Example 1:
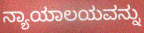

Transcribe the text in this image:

ನ್ಯಾಯಾಲಯವನ್ನು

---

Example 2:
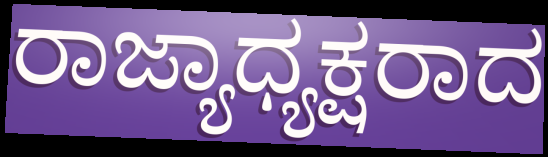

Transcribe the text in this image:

ರಾಜ್ಯಾಧ್ಯಕ್ಷರಾದ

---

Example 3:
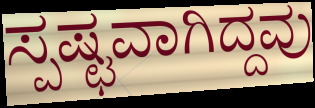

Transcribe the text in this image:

ಸ್ಪಷ್ಟವಾಗಿದ್ದವು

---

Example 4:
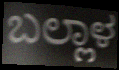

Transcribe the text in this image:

ಬಲ್ಲಾಳ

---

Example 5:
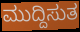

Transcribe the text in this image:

ಮುದ್ದಿಸುತ